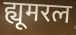
ह्यूमरल